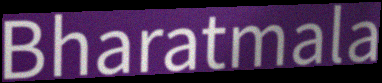
Bharatmala